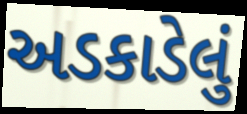
અડકાડેલું